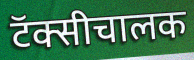
टॅक्सीचालक